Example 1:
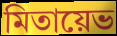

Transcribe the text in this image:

মিতায়েভ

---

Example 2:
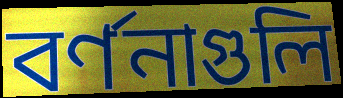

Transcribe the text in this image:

বর্ণনাগুলি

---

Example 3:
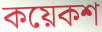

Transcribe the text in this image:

কয়েকশ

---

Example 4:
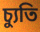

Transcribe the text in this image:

চ্যুতি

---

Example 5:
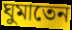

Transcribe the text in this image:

ঘুমাতেন